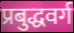
प्रबुद्धवर्ग